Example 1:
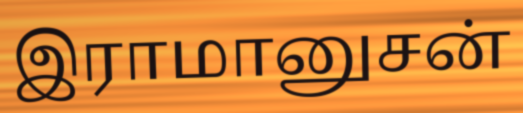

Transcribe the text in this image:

இராமானுசன்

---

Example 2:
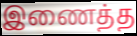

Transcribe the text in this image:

இணைத்த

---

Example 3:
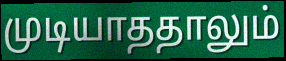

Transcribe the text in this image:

முடியாததாலும்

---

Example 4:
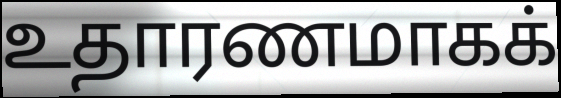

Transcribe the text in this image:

உதாரணமாகக்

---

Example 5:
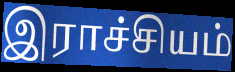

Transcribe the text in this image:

இராச்சியம்